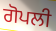
ਗੋਪਲੀ